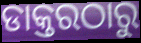
ଡାକ୍ତରଠାରୁ